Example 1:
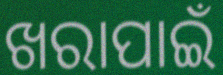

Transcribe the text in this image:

ଖରାପାଇଁ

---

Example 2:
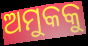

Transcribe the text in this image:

ଅମୁକକୁ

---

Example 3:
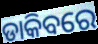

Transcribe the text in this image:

ଡାକିବରେ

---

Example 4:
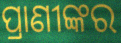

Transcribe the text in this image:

ପ୍ରାଣୀଙ୍କର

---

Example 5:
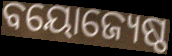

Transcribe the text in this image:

ବୟୋଜ୍ୟେଷ୍ଠ